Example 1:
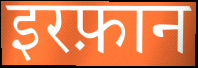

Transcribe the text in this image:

इरफ़ान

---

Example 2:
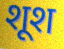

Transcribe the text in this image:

शूश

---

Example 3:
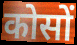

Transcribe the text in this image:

कोसों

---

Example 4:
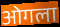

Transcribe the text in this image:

ओगला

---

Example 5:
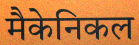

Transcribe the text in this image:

मैकेनिकल